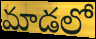
మాడలో